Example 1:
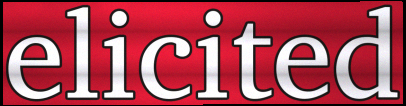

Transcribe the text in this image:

elicited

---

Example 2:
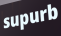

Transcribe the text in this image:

supurb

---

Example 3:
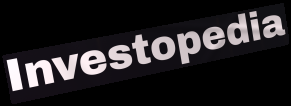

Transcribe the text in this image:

Investopedia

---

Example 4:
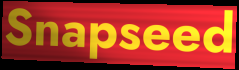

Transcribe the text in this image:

Snapseed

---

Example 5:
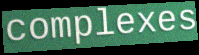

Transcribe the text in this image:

complexes